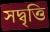
সদ্বৃত্তি